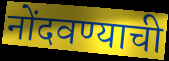
नोंदवण्याची